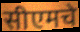
सीएमचे